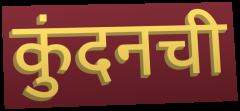
कुंदनची